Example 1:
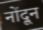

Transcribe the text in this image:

नोंदून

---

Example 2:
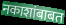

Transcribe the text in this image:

नकाशांबाबत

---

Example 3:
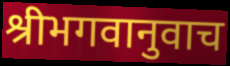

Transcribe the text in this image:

श्रीभगवानुवाच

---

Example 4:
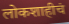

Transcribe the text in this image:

लोकशाहीचं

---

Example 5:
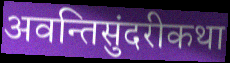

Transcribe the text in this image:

अवन्तिसुंदरीकथा